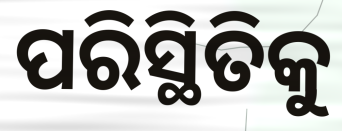
ପରିସ୍ଥିତିକୁ